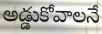
అడ్డుకోవాలనే